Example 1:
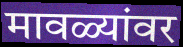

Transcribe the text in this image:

मावळ्यांवर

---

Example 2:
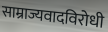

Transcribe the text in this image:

साम्राज्यवादविरोधी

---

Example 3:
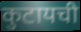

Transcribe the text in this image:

कुटायची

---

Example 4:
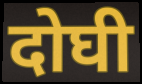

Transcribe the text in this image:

दोघी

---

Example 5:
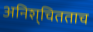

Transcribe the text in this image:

अनिश्चितताच